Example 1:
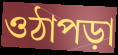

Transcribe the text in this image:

ওঠাপড়া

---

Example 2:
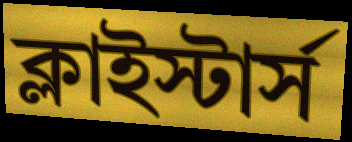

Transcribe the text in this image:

ক্লাইস্টার্স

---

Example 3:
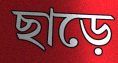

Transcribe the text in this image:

ছাড়ে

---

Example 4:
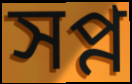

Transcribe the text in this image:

সপ্ন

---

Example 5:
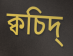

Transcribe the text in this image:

ক্বচিদ্